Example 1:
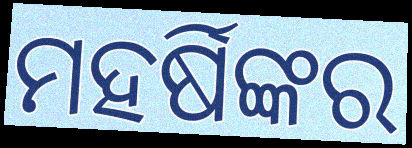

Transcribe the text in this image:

ମହର୍ଷିଙ୍କର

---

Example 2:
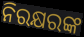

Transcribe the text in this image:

ନିରକ୍ଷରଙ୍କ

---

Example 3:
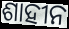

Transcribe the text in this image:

ଶାହୀନ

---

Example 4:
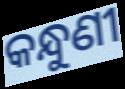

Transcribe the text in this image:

କନ୍ଧୁଣୀ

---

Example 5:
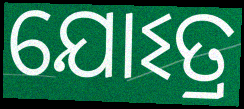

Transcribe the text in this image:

ଯୋଽତ୍ର